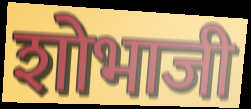
शोभाजी